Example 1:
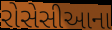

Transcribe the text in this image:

રોસેસીઆના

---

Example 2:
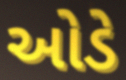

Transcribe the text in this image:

ઓડે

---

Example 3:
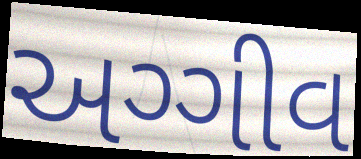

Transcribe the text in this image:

અગ્ગીવ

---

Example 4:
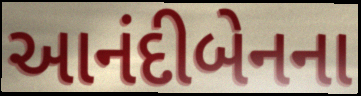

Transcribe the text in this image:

આનંદીબેનના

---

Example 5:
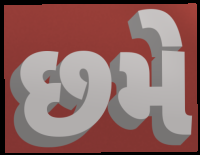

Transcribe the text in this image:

છમે